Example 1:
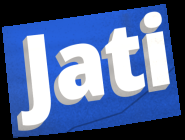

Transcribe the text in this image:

Jati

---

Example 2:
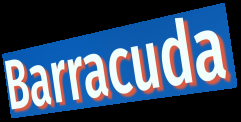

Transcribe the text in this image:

Barracuda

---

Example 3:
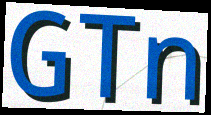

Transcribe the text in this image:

GTn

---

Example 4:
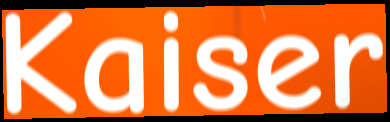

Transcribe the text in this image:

Kaiser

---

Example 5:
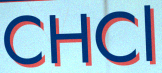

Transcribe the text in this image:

CHCl